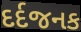
દર્દજનક